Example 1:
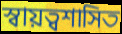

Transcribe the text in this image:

স্বায়ত্বশাসিত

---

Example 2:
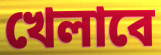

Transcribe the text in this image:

খেলাবে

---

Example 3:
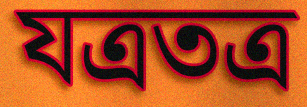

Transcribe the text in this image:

যত্রতত্র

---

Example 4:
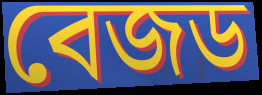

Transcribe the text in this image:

বেজড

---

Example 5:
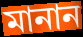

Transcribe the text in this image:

মানান